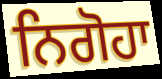
ਨਿਗੋਹਾ